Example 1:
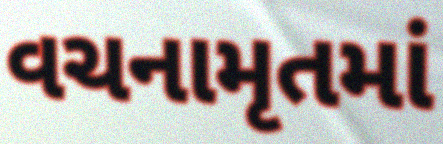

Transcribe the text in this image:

વચનામૃતમાં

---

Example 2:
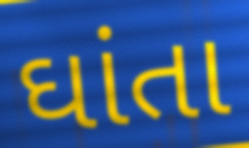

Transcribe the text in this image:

ઘાંતા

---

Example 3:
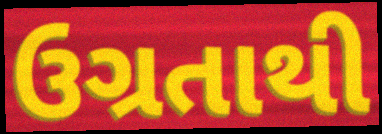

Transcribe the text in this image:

ઉગ્રતાથી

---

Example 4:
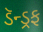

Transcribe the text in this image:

ડૅન્ડ્રફ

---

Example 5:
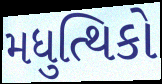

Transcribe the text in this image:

મધુત્થિકો